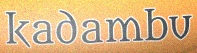
kadambu